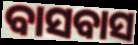
ବାସବାସ